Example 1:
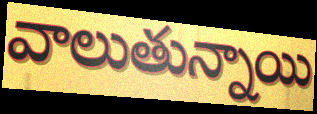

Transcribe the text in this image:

వాలుతున్నాయి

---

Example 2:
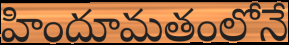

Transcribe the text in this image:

హిందూమతంలోనే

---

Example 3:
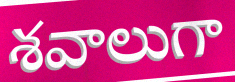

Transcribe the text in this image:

శవాలుగా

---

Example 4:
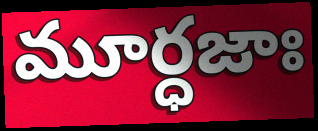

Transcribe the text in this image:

మూర్ధజాః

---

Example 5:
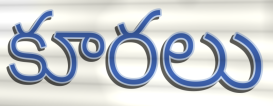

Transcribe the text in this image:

కూరలు